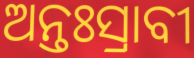
ଅନ୍ତଃସ୍ରାବୀ